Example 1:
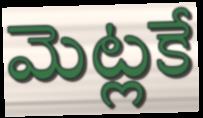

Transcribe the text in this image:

మెట్లకే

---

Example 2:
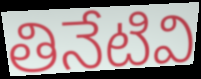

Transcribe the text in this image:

తినేటివి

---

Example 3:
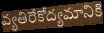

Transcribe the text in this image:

వ్యతిరేకోద్యమానికి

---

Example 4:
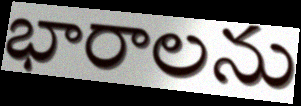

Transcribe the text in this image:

భారాలను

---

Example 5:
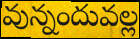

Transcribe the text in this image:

వున్నందువల్ల